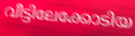
വീട്ടിലേക്കോടിയ